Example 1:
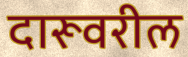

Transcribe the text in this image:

दारूवरील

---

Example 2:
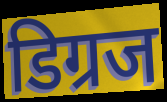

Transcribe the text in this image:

डिग्रज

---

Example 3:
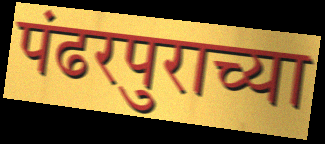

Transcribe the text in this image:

पंढरपुराच्या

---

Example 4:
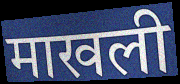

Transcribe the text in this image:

माखली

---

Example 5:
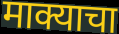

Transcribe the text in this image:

माक्याचा